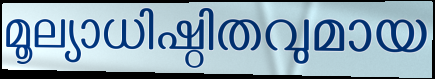
മൂല്യാധിഷ്ഠിതവുമായ